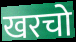
खरचो